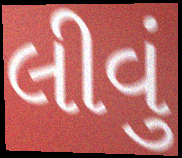
લીવું